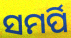
ସମର୍ପି